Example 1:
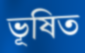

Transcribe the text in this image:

ভূষিত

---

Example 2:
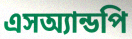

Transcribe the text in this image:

এসঅ্যান্ডপি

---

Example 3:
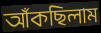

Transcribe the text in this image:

আঁকছিলাম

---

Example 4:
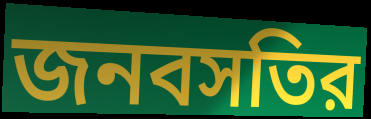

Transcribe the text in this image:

জনবসতির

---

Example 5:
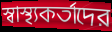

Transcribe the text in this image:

স্বাস্থ্যকর্তাদের